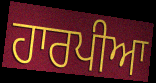
ਹਾਰਪੀਆ